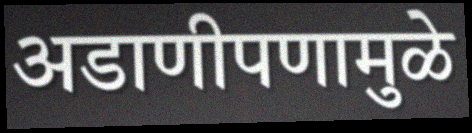
अडाणीपणामुळे